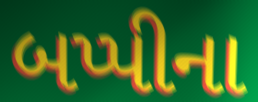
બપ્પીના